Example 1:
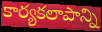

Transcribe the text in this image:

కార్యకలాపాన్ని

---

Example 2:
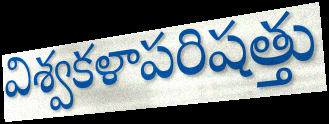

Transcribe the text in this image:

విశ్వకళాపరిషత్తు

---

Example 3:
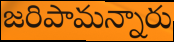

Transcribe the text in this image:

జరిపామన్నారు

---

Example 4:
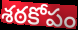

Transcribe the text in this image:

శఠకోపం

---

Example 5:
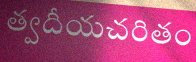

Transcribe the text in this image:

త్వదీయచరితం